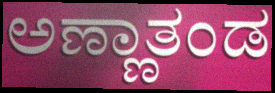
ಅಣ್ಣಾತಂಡ